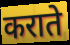
कराते